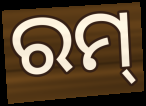
ରମ୍